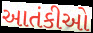
આતંકીઓ